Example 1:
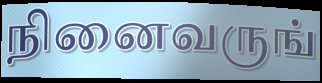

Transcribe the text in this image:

நினைவருங்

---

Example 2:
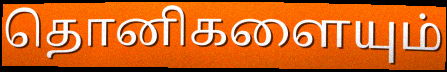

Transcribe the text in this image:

தொனிகளையும்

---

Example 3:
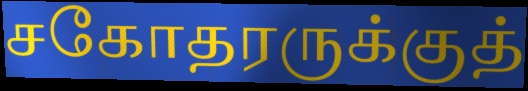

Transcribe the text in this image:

சகோதரருக்குத்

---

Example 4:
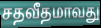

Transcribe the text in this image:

சதவீதமாவது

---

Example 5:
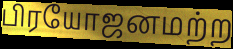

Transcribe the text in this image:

பிரயோஜனமற்ற